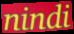
nindi